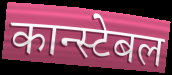
कान्स्टेबल